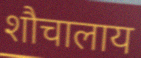
शौचालाय